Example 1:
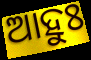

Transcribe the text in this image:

ଆହୁଃ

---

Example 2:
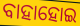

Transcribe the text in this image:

ବାହାହୋଇ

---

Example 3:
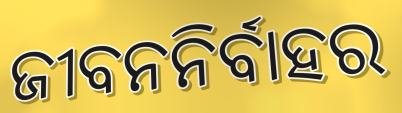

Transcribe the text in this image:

ଜୀବନନିର୍ବାହର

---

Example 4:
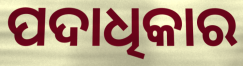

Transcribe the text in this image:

ପଦାଧିକାର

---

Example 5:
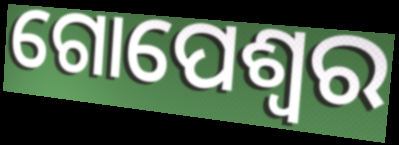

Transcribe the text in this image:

ଗୋପେଶ୍ଵର